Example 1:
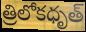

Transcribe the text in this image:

త్రిలోకధృత్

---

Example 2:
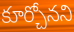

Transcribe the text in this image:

కూర్చోనని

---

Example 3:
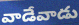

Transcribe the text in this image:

వాడేవాడు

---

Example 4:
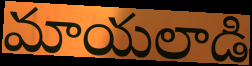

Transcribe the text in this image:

మాయలాడి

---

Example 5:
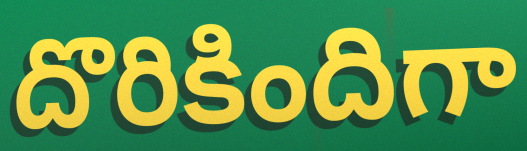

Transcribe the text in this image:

దొరికిందిగా